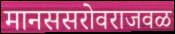
मानससरोवराजवळ